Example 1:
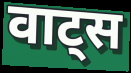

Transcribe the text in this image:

वाट्स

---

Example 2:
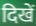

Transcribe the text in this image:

दिखें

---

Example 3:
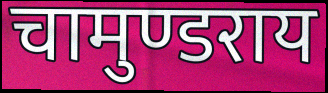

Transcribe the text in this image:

चामुण्डराय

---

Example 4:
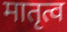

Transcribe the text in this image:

मातृत्व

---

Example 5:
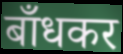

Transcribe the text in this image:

बाँधकर